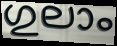
ഗുലാം